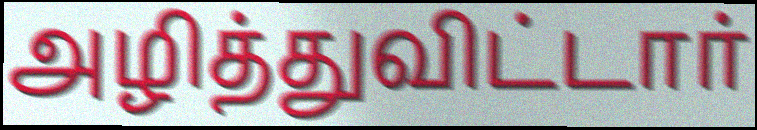
அழித்துவிட்டார்